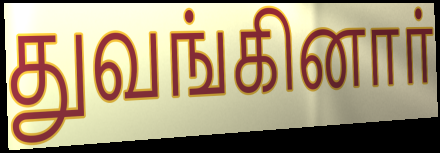
துவங்கினார்